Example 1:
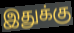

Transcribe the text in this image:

இதுக்கு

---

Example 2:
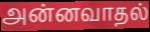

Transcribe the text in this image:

அன்னவாதல்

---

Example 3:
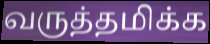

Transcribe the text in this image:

வருத்தமிக்க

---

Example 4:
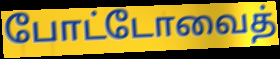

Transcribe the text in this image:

போட்டோவைத்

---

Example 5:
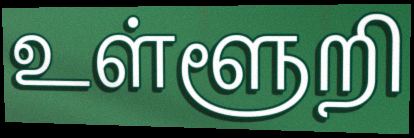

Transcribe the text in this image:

உள்ளூறி